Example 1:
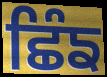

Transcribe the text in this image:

ਛਿੰਙ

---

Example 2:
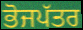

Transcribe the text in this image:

ਭੋਜਪੱਤਰ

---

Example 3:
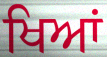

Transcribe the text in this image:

ਖਿਆਂ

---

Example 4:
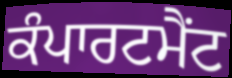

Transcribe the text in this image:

ਕੰਪਾਰਟਮੈਂਟ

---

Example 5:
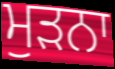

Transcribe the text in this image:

ਮੁਡ਼ਨਾ